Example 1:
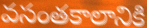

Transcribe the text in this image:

వసంతకాలానికి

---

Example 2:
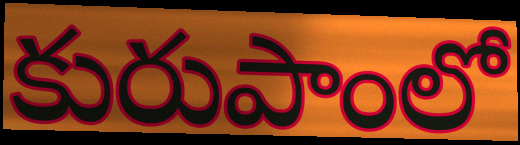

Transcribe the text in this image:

కురుపాంలో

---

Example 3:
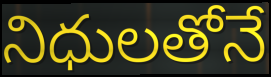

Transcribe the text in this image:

నిధులతోనే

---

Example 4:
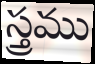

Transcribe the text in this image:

స్త్రము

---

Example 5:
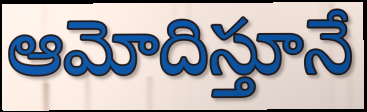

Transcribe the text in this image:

ఆమోదిస్తూనే